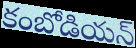
కంబోడియన్